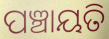
ପଞ୍ଚାୟତି